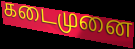
கடைமுனை